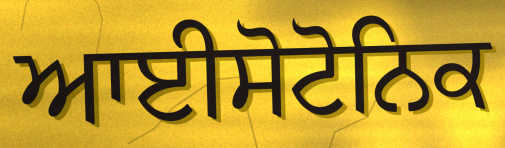
ਆਈਸੋਟੋਨਿਕ